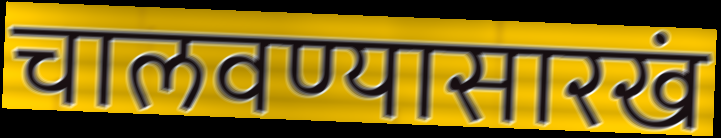
चालवण्यासारखं